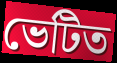
ভেটিত